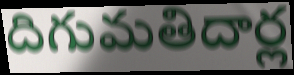
దిగుమతిదార్ల